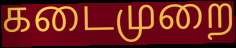
கடைமுறை